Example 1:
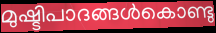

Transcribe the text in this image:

മുഷ്ടിപാദങ്ങൾകൊണ്ടു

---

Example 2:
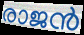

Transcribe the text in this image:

രാജൻ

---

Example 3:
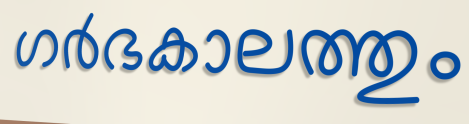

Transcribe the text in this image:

ഗർഭകാലത്തും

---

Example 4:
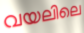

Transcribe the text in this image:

വയലിലെ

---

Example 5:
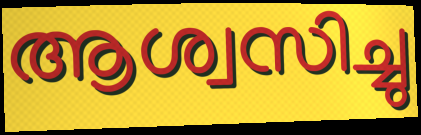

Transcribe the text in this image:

ആശ്വസിച്ചു